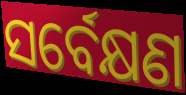
ସର୍ବେକ୍ଷଣ